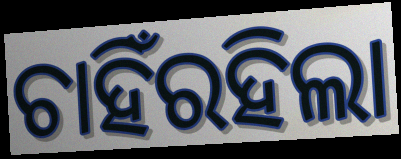
ଚାହିଁରହିଲା